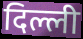
दिल्ली